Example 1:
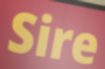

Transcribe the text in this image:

Sire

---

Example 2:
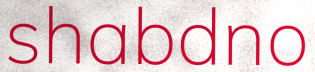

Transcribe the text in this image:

shabdno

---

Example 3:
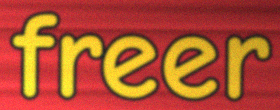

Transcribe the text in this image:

freer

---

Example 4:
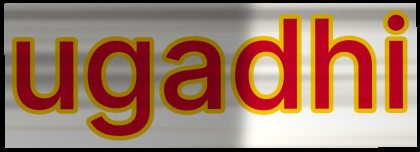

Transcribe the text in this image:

ugadhi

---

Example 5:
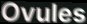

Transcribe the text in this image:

Ovules